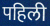
पहिली